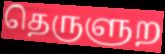
தெருளுற